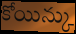
కోయిన్కు